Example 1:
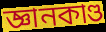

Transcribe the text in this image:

জ্ঞানকাণ্ড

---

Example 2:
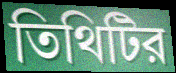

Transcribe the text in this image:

তিথিটির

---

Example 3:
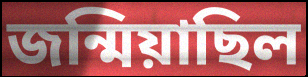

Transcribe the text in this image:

জন্মিয়াছিল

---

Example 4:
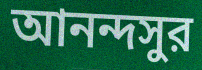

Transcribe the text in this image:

আনন্দসুর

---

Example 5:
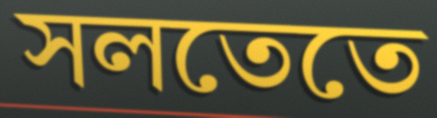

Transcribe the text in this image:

সলতেতে